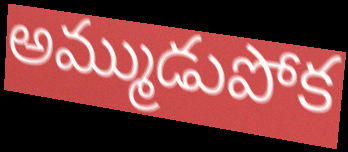
అమ్ముడుపోక